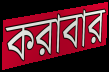
করাবার